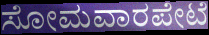
ಸೋಮವಾರಪೇಟೆ